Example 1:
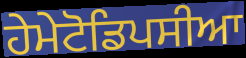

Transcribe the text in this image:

ਹੇਮੇਟੋਡਿਪਸੀਆ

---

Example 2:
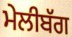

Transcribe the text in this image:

ਮੇਲੀਬੱਗ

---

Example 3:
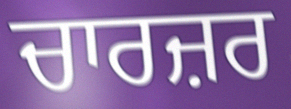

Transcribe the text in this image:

ਚਾਰਜ਼ਰ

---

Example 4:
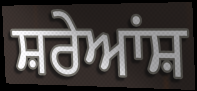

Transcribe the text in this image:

ਸ਼ਰੇਆਂਸ਼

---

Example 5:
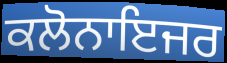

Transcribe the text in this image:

ਕਲੋਨਾਇਜਰ